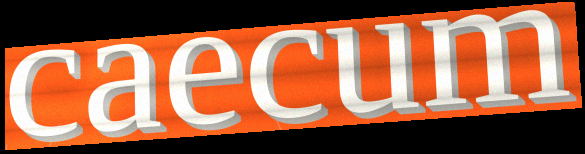
caecum